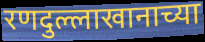
रणदुल्लाखानाच्या